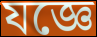
যজ্ঞে